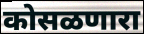
कोसळणारा